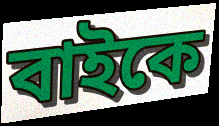
বাইকে